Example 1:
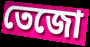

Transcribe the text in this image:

তেজো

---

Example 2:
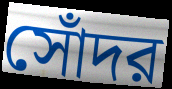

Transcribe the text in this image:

সোঁদর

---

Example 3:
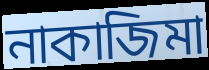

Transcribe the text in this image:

নাকাজিমা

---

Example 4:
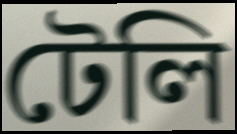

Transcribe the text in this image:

টেলি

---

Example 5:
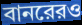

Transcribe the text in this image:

বানরেরও